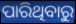
ପାରିଥିବାରୁ